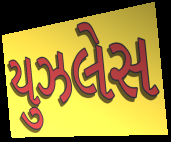
યુઝલેસ